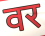
वर